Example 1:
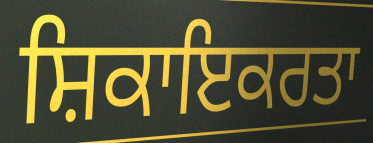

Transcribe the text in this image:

ਸ਼ਿਕਾਇਕਰਤਾ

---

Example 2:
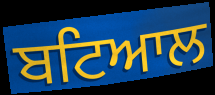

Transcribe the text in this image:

ਬਟਿਆਲ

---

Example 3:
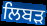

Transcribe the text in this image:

ਲਿਬੜ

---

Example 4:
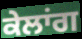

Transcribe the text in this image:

ਕੇਲਾਂਗ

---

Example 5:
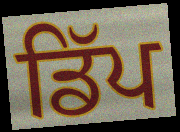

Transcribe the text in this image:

ਡਿੱਪ